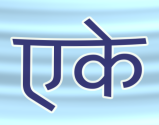
एके